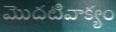
మొదటివాక్యం